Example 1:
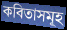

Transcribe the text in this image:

কবিতাসমূহ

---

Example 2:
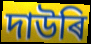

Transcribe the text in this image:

দাউৰি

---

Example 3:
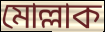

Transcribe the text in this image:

মোল্লাক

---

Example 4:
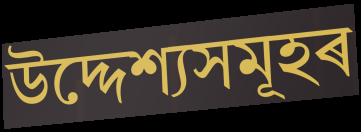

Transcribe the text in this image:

উদ্দেশ্যসমূহৰ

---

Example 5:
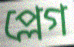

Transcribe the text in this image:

প্লেগ